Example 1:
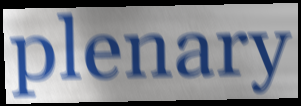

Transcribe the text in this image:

plenary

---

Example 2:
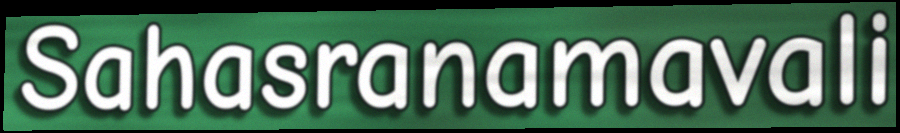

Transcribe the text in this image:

Sahasranamavali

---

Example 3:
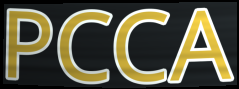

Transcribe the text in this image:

PCCA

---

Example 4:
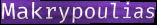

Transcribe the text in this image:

Makrypoulias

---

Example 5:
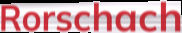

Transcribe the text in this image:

Rorschach